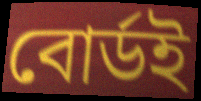
বোর্ডই